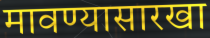
मावण्यासारखा